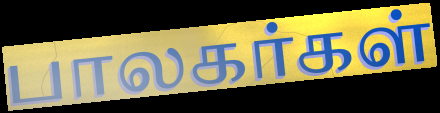
பாலகர்கள்